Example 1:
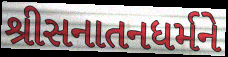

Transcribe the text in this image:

શ્રીસનાતનધર્મને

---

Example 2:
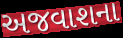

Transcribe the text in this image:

અજવાશના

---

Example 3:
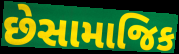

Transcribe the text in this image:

છેસામાજિક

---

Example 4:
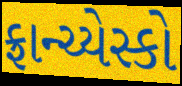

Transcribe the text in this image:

ફ્રાન્ચ્યેસ્કો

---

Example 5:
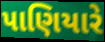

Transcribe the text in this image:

પાણિયારે